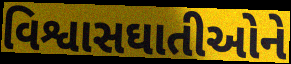
વિશ્વાસઘાતીઓને